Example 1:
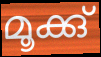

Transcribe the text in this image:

മൂക്കു്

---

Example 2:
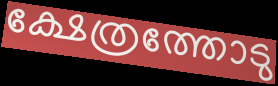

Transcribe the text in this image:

ക്ഷേത്രത്തോടു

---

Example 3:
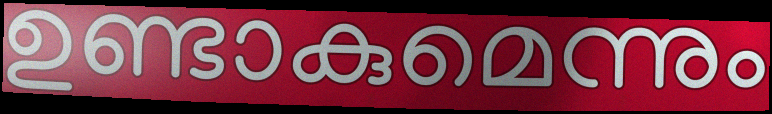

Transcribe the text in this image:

ഉണ്ടാകുമെന്നും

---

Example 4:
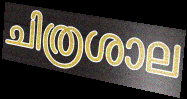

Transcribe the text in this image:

ചിത്രശാല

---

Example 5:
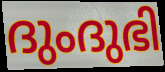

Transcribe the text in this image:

ദുംദുഭി